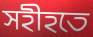
সহীহতে